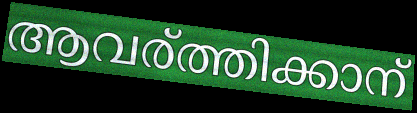
ആവര്ത്തിക്കാന്